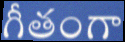
గీతంగా